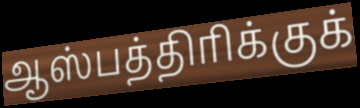
ஆஸ்பத்திரிக்குக்